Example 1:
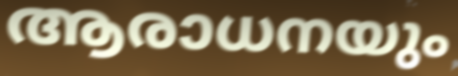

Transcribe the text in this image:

ആരാധനയും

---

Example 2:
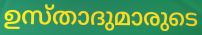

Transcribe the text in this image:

ഉസ്താദുമാരുടെ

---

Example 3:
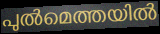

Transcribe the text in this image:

പുൽമെത്തയിൽ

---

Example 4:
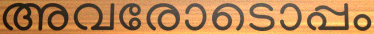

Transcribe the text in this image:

അവരോടൊപ്പം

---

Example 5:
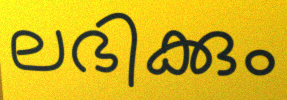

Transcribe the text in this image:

ലഭിക്കും